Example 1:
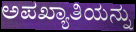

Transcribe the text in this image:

ಅಪಖ್ಯಾತಿಯನ್ನು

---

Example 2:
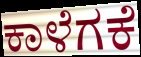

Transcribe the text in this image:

ಕಾಳೆಗಕೆ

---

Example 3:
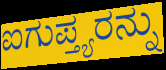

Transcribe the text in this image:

ಐಗುಪ್ತ್ಯರನ್ನು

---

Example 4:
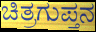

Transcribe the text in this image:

ಚಿತ್ರಗುಪ್ತನ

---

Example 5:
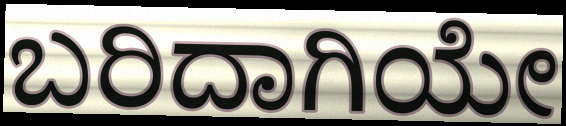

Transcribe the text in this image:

ಬರಿದಾಗಿಯೇ